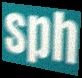
sph